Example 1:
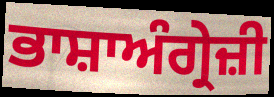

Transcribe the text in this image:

ਭਾਸ਼ਾਅੰਗ੍ਰੇਜ਼ੀ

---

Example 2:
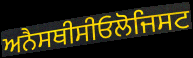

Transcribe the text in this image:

ਅਨੈਸਥੀਸੀਓਲੋਜਿਸਟ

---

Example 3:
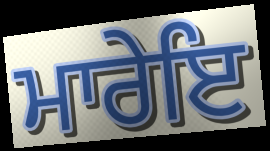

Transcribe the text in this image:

ਮਾਰੇਇ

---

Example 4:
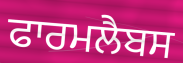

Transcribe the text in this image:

ਫਾਰਮਲੈਬਸ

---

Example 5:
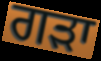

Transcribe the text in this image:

ਗੜਾ